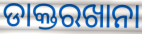
ଡାକ୍ତରଖାନା